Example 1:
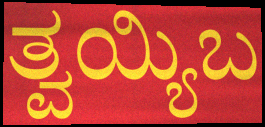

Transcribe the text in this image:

ತ್ವಯ್ಯಿಬ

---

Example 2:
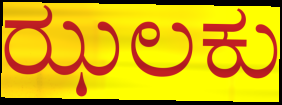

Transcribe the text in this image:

ಝಲಕು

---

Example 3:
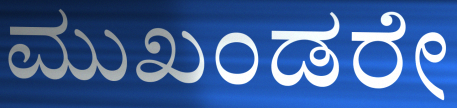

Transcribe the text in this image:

ಮುಖಂಡರೇ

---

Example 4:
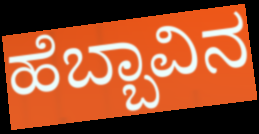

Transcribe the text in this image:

ಹೆಬ್ಬಾವಿನ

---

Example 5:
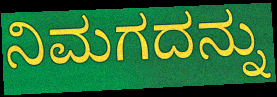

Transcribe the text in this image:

ನಿಮಗದನ್ನು